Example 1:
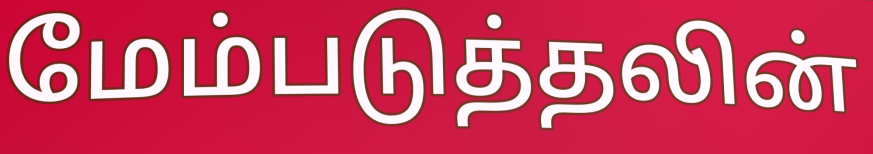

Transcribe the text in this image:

மேம்படுத்தலின்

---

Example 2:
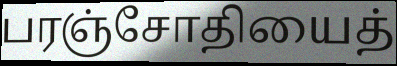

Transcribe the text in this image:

பரஞ்சோதியைத்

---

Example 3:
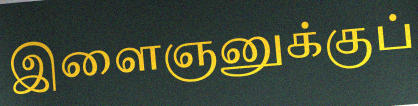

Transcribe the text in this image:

இளைஞனுக்குப்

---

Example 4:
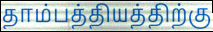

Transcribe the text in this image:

தாம்பத்தியத்திற்கு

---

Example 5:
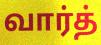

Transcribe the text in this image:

வார்த்